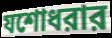
যশোধরার